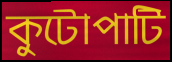
কুটোপাটি